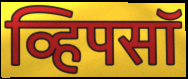
व्हिपसॉ